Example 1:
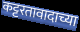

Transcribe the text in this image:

कट्टरतावादाच्या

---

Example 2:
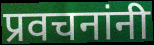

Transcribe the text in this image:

प्रवचनांनी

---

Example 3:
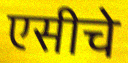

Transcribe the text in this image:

एसीचे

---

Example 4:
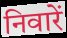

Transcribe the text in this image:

निवारें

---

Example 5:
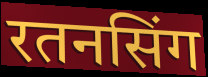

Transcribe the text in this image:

रतनसिंग